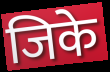
जिके